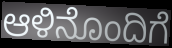
ಆಳಿನೊಂದಿಗೆ